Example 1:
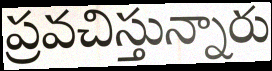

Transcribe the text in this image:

ప్రవచిస్తున్నారు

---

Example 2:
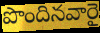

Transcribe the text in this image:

పొందినవారై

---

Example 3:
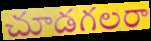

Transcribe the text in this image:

చూడగలరా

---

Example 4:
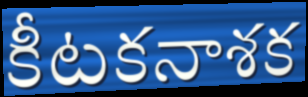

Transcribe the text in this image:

కీటకనాశక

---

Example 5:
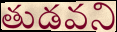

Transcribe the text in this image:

తుడవని